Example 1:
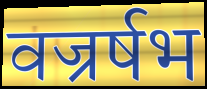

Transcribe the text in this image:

वज्रर्षभ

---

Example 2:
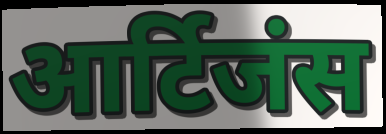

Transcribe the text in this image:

आर्टिजंस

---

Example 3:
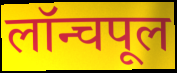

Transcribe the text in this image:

लॉन्चपूल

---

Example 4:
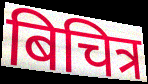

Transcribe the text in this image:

बिचित्र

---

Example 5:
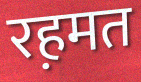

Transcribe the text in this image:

रह़मत